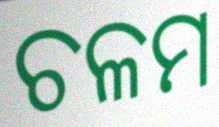
ଚଳମ